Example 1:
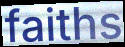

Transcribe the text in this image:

faiths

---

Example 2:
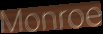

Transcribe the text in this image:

Monroe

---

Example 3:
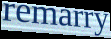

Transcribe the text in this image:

remarry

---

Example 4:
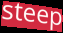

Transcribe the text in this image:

steep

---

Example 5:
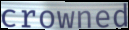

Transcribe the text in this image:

crowned